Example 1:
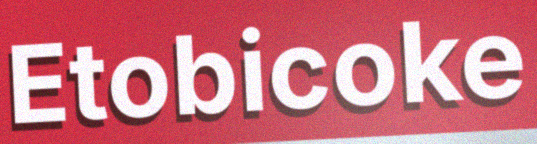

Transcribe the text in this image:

Etobicoke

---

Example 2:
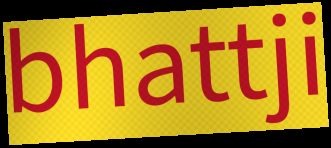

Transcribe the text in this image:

bhattji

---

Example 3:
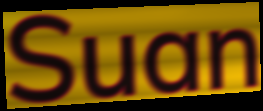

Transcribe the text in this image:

Suan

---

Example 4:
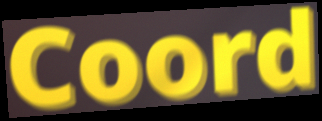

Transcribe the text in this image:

Coord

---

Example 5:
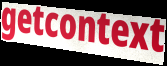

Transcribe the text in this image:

getcontext